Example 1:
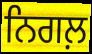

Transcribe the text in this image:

ਨਿਗਲ਼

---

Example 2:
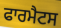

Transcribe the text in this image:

ਫਾਰਮੈਟਸ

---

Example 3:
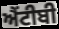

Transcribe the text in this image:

ਐਂਟੀਬੀ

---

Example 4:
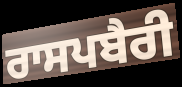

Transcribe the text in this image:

ਰਾਸਪਬੈਰੀ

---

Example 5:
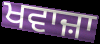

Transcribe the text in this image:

ਖਵਾਜ਼ਾ